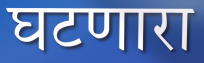
घटणारा